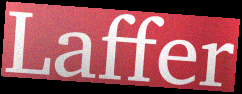
Laffer